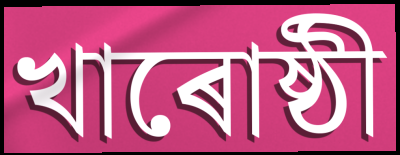
খাৰোষ্ঠী